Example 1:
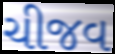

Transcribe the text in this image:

ચીજવ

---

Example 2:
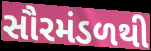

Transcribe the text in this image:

સૌરમંડળથી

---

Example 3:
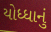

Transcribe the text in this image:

યોધ્ધાનું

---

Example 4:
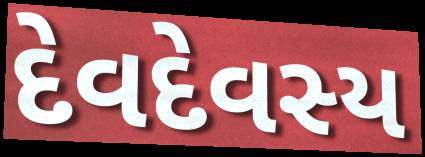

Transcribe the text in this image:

દેવદેવસ્ય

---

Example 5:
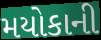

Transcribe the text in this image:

મયોકાની